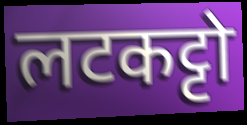
लटकट्टो